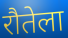
रौतेला